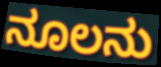
ನೂಲನು